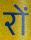
रों